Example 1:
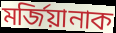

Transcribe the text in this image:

মৰ্জিয়ানাক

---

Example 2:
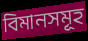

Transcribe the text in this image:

বিমানসমূহ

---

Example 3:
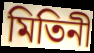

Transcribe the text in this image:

মিতিনী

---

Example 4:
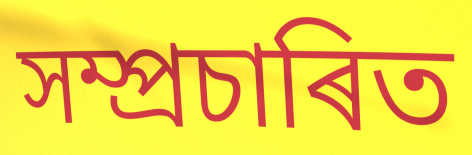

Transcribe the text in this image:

সম্প্ৰচাৰিত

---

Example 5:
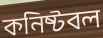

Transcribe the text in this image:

কনিষ্টবল